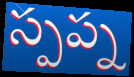
స్పప్న